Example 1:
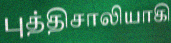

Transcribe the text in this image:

புத்திசாலியாகி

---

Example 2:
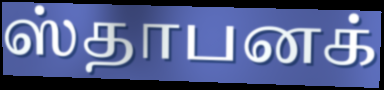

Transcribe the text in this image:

ஸ்தாபனக்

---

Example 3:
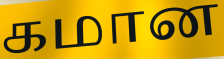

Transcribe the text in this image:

கமான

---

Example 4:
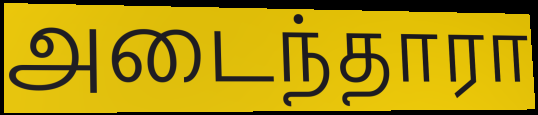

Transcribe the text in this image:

அடைந்தாரா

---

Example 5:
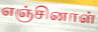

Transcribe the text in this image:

எஞ்சினாள்